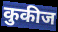
कुकीज